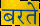
बरते